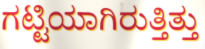
ಗಟ್ಟಿಯಾಗಿರುತ್ತಿತ್ತು